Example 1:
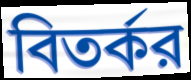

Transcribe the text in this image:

বিতর্কর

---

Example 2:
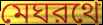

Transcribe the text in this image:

মেঘরথে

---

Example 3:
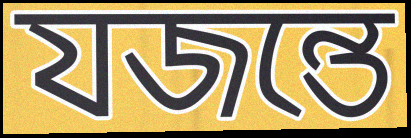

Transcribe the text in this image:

যজন্তে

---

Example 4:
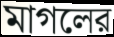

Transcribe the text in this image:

মাগলের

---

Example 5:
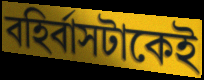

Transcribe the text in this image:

বহির্বাসটাকেই